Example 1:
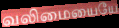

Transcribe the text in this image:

வலிமையையே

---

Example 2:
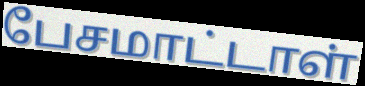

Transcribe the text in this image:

பேசமாட்டாள்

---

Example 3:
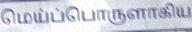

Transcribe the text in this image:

மெய்ப்பொருளாகிய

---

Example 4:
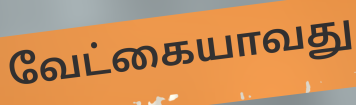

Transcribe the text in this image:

வேட்கையாவது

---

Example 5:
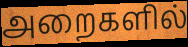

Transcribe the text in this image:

அறைகளில்